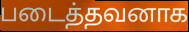
படைத்தவனாக